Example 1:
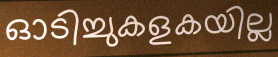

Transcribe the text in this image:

ഓടിച്ചുകളകയില്ല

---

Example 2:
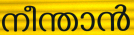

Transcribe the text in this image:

നീന്താൻ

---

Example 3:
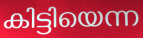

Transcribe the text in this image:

കിട്ടിയെന്ന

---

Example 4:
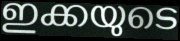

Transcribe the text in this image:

ഇക്കയുടെ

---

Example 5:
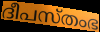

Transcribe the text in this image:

ദീപസ്തംഭ